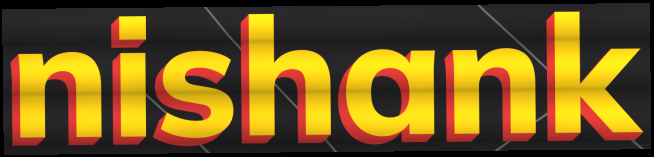
nishank